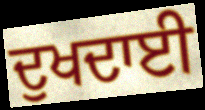
ਦੁਖਦਾਈ